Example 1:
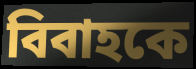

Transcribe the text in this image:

বিবাহকে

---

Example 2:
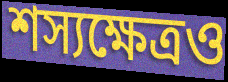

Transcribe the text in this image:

শস্যক্ষেত্রও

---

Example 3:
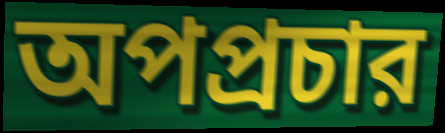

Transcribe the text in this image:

অপপ্রচার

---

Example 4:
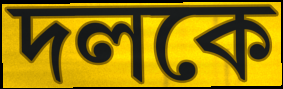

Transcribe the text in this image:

দলকে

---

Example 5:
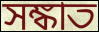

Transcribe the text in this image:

সঙ্কাত